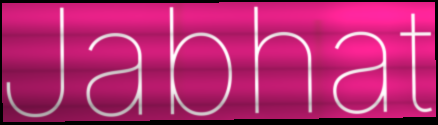
Jabhat